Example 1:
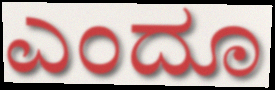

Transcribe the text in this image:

ಎಂದೂ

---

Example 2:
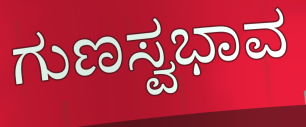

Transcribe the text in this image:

ಗುಣಸ್ವಭಾವ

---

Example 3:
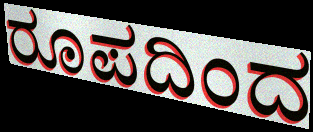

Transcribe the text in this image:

ರೂಪದಿಂದ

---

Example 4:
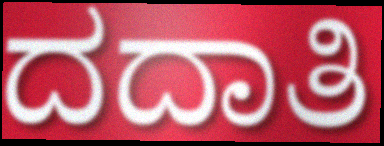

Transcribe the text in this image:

ದದಾತಿ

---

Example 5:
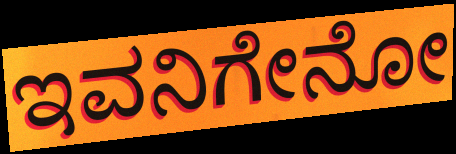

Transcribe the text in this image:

ಇವನಿಗೇನೋ